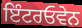
ਇੰਟਰਓਵੇਨ